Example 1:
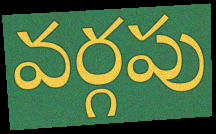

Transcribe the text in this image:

వర్గపు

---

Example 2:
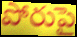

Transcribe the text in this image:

పోరుపై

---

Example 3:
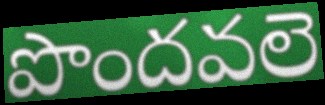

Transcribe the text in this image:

పొందవలె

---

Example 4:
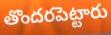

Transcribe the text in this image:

తొందరపెట్టారు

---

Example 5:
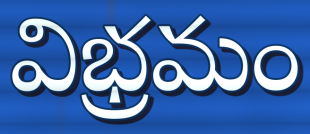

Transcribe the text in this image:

విభ్రమం